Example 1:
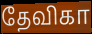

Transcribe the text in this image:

தேவிகா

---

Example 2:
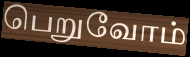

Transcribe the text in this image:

பெறுவோம்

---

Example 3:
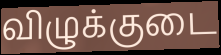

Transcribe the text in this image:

விழுக்குடை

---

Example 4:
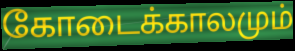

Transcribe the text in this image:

கோடைக்காலமும்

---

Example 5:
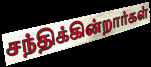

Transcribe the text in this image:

சந்திக்கின்றார்கள்